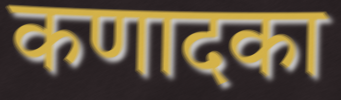
कणादका